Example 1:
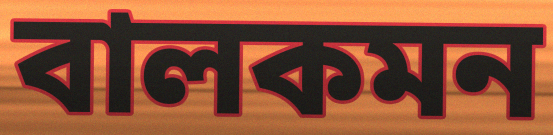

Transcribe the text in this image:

বালকমন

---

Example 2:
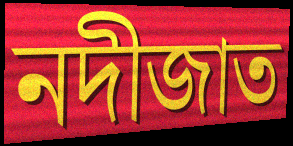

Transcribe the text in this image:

নদীজাত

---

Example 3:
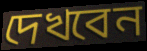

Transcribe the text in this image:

দেখবেন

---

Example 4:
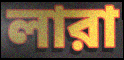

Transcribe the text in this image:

লারা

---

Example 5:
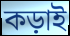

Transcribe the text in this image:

কড়াই